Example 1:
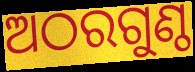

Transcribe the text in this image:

ଅଠରଗୁଣ୍ଠ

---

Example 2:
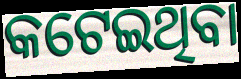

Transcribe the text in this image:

କଟେଇଥିବା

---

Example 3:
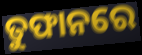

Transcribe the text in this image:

ତୁଫାନରେ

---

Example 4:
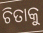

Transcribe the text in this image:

ଚିତାକୁ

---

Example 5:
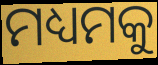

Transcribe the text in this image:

ମଧ୍ୟମକୁ